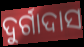
ଦୁର୍ଗାଦାସ